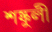
শষ্কুলী